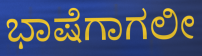
ಭಾಷೆಗಾಗಲೀ